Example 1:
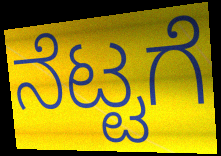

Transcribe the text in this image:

ನೆಟ್ಟಗೆ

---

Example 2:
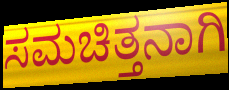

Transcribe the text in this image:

ಸಮಚಿತ್ತನಾಗಿ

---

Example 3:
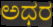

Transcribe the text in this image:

ಅಧರ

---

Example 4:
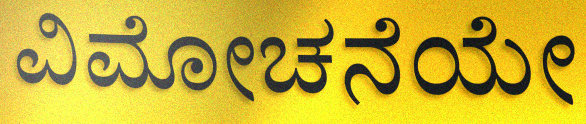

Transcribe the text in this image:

ವಿಮೋಚನೆಯೇ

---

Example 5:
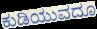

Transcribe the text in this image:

ಕುಡಿಯುವದೂ